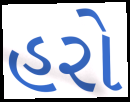
હરો